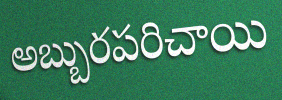
అబ్బురపరిచాయి